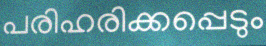
പരിഹരിക്കപ്പെടും